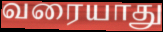
வரையாது